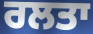
ਰਲਤਾ